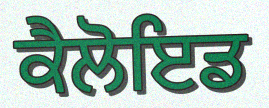
ਕੈਲੋਇਡ